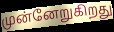
முன்னேறுகிறது